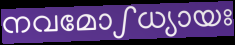
നവമോഽധ്യായഃ